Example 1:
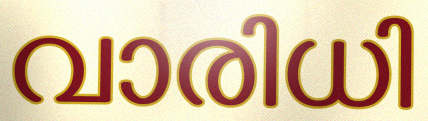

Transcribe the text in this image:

വാരിധി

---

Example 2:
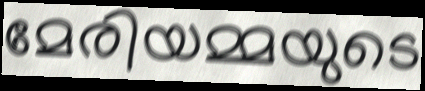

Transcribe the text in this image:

മേരിയമ്മയുടെ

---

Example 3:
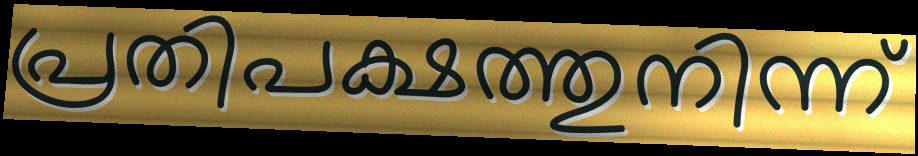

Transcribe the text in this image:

പ്രതിപക്ഷത്തുനിന്ന്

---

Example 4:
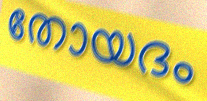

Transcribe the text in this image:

തോയദം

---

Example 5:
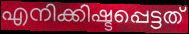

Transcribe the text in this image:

എനിക്കിഷ്ടപ്പെട്ടത്